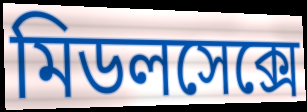
মিডলসেক্সে